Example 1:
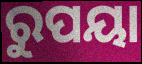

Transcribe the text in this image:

ରୁପୟା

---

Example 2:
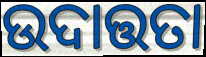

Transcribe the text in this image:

ଉଦାତ୍ତତା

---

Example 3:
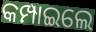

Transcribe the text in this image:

କମ୍ପାଇଲେ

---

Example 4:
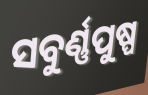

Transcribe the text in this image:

ସବୁର୍ଣ୍ଣପୁଷ୍ପ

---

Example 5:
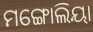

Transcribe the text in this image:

ମଙ୍ଗୋଲିୟା